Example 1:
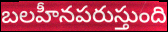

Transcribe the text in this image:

బలహీనపరుస్తుంది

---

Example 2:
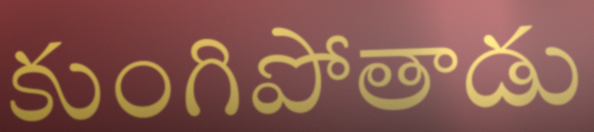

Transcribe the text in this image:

కుంగిపోతాడు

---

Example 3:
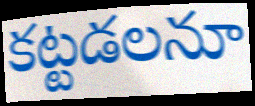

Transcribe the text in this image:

కట్టడలనూ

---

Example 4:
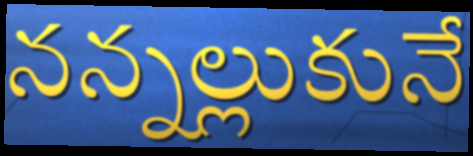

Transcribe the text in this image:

నన్నల్లుకునే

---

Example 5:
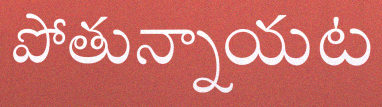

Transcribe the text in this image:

పోతున్నాయట